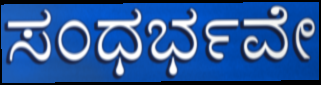
ಸಂಧರ್ಭವೇ